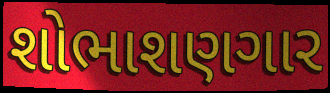
શોભાશણગાર